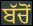
ਬੱਚੋਂ